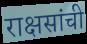
राक्षसांची